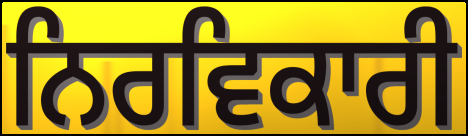
ਨਿਰਵਿਕਾਰੀ